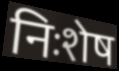
निःशेष